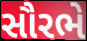
સૌરભે